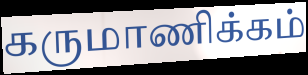
கருமாணிக்கம்